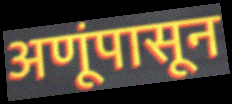
अणूंपासून